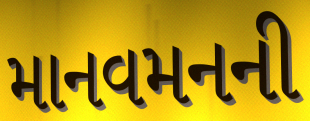
માનવમનની